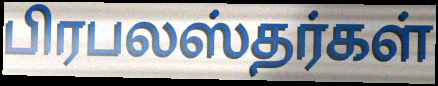
பிரபலஸ்தர்கள்